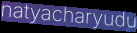
natyacharyudu